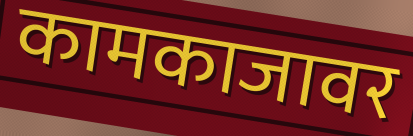
कामकाजावर